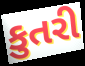
કુતરી